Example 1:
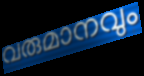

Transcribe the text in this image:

വരുമാനവും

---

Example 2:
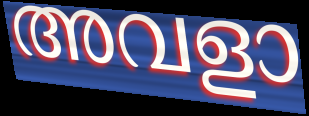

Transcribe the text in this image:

അവളാ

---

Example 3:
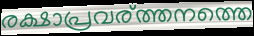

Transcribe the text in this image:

രക്ഷാപ്രവര്ത്തനത്തെ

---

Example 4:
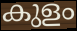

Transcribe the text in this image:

കുളം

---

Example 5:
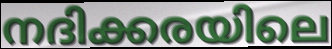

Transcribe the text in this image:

നദിക്കരയിലെ